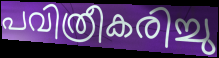
പവിത്രീകരിച്ചു